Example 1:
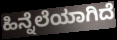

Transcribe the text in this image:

ಹಿನ್ನೆಲೆಯಾಗಿದೆ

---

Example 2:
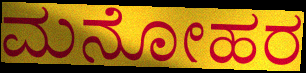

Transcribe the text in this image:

ಮನೋಹರ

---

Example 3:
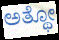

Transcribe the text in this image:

ಅತ್ಥೋ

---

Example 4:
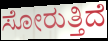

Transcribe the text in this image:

ಸೋರುತ್ತಿದೆ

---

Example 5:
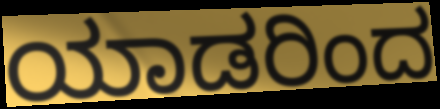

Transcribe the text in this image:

ಯಾಡರಿಂದ